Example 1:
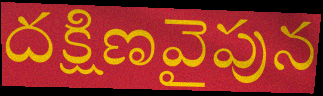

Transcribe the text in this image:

దక్షిణవైపున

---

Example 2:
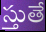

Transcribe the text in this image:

స్తుతే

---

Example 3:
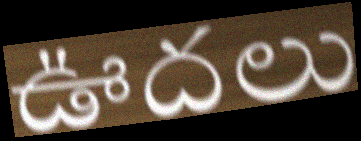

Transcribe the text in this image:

ఊదలు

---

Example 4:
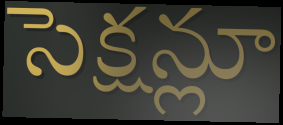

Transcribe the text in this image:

సెక్షన్లూ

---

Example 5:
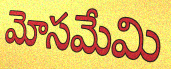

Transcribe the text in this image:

మోసమేమి